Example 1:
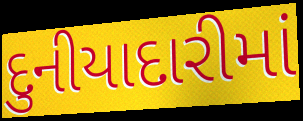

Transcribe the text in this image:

દુનીયાદારીમાં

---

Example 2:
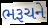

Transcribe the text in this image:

ભરૂચને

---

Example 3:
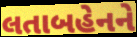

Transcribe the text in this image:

લતાબહેનને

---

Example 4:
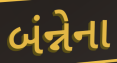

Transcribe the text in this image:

બંન્નેના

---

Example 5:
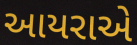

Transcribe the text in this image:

આયરાએ